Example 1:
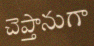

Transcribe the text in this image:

చెప్తానుగా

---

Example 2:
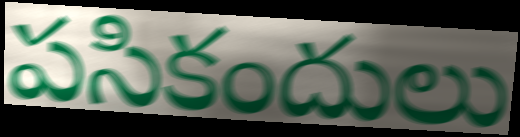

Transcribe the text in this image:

పసికందులు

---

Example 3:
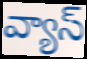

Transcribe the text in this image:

వ్యాస్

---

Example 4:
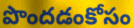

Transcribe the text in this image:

పొందడంకోసం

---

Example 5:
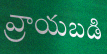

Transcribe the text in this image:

వ్రాయబడి